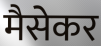
मैसेकर